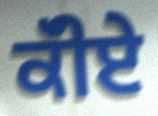
ਕੱੀਏ